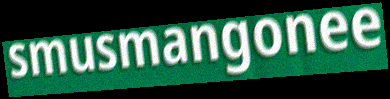
smusmangonee